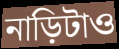
নাড়িটাও